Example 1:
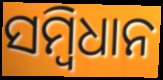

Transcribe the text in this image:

ସମ୍ୱିଧାନ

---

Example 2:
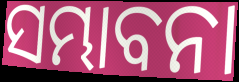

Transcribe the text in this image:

ସମ୍ଭାବନା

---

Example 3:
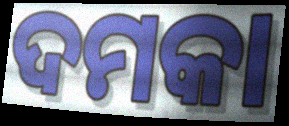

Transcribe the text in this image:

ଦମକା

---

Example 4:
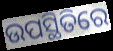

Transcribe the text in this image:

ଉପସ୍ଥିତିରେ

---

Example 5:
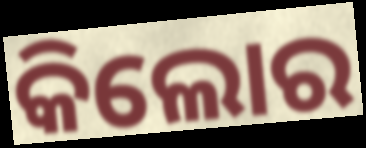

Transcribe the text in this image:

କିଲୋର